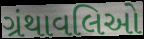
ગ્રંથાવલિઓ